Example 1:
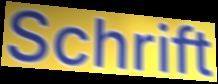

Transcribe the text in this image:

Schrift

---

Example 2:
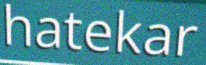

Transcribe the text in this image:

hatekar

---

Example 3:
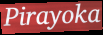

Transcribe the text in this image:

Pirayoka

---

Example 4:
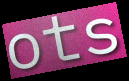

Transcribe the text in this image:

ots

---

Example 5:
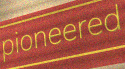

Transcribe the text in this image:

pioneered